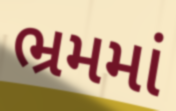
ભ્રમમાં